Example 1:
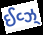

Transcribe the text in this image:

ઈવ્ઝ્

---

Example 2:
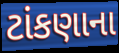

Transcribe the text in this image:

ટાંકણાના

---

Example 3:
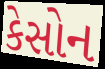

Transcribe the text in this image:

કેસોન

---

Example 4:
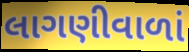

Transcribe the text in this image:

લાગણીવાળાં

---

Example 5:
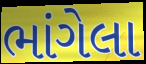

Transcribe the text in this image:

ભાંગેલા